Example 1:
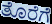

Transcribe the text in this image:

ತೊರೆಗೆ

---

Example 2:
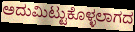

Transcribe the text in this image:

ಅದುಮಿಟ್ಟುಕೊಳ್ಳಲಾಗದ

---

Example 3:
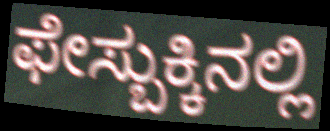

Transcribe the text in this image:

ಫೇಸ್ಬುಕ್ಕಿನಲ್ಲಿ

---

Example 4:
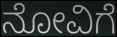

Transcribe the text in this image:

ನೋವಿಗೆ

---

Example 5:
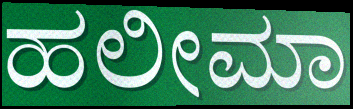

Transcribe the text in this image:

ಹಲೀಮಾ